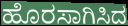
ಹೊರಸಾಗಿಸಿದ